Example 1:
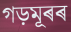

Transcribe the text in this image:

গড়মূৰৰ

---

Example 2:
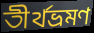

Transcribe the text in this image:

তীৰ্থভ্ৰমণ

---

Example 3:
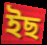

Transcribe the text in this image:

ইছ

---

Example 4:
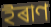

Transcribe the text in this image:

ইৰাণ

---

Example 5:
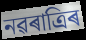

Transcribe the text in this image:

নৱৰাত্ৰিৰ